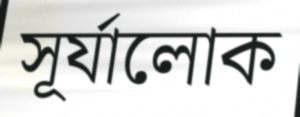
সূর্যালোক